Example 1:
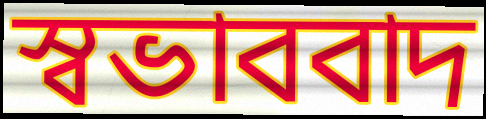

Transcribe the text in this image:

স্বভাববাদ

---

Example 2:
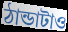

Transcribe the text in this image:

ঠান্ডাটাও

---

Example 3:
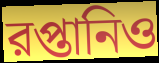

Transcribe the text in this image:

রপ্তানিও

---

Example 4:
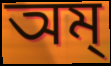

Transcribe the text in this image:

অম্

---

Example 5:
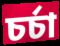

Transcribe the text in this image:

চর্চা